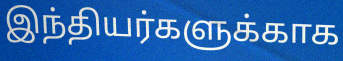
இந்தியர்களுக்காக